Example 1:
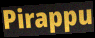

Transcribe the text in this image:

Pirappu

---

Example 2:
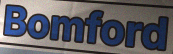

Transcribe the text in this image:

Bomford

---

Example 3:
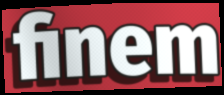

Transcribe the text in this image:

finem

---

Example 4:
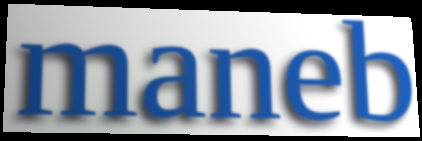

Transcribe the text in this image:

maneb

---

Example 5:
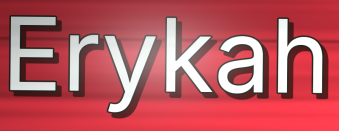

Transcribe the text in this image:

Erykah